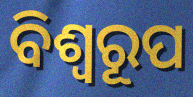
ବିଶ୍ୱରୂପ